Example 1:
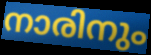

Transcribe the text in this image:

നാരിനും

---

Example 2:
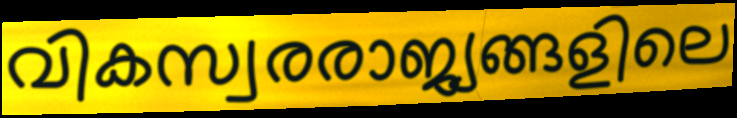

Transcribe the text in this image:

വികസ്വരരാജ്യങ്ങളിലെ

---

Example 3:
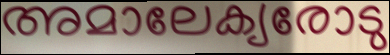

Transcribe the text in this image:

അമാലേക്യരോടു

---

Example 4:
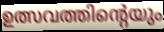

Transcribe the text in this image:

ഉത്സവത്തിന്റെയും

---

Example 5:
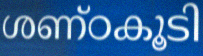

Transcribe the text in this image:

ശണ്ഠകൂടി